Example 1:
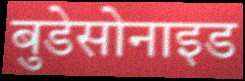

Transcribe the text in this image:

बुडेसोनाइड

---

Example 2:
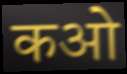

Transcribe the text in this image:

कओ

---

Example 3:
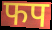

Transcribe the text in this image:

फप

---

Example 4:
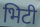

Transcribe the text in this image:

भिटी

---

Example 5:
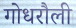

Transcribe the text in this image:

गोधरौली